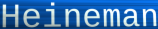
Heineman